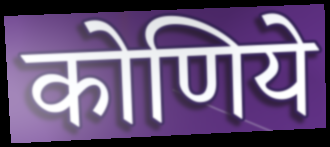
कोणिये